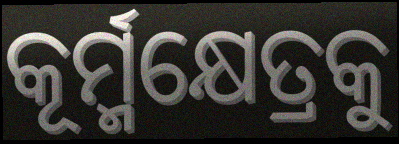
କୂର୍ମ୍ମକ୍ଷେତ୍ରକୁ